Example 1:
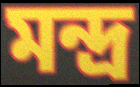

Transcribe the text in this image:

মন্দ্র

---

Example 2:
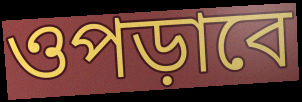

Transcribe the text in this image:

ওপড়াবে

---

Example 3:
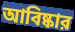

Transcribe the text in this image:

আবিষ্কার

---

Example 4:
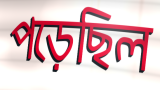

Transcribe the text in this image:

পড়েছিল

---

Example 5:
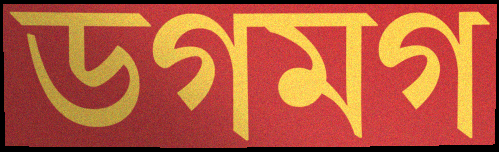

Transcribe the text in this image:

ডগমগ